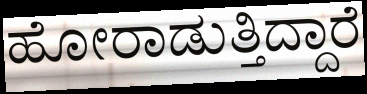
ಹೋರಾಡುತ್ತಿದ್ದಾರೆ